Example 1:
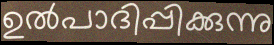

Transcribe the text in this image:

ഉൽപാദിപ്പിക്കുന്നു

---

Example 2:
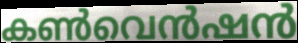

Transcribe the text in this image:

കൺവെൻഷൻ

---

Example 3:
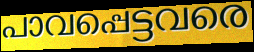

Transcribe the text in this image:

പാവപ്പെട്ടവരെ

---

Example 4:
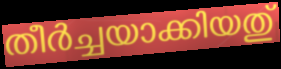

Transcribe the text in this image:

തീർച്ചയാക്കിയതു്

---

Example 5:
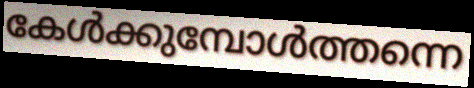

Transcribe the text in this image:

കേൾക്കുമ്പോൾത്തന്നെ